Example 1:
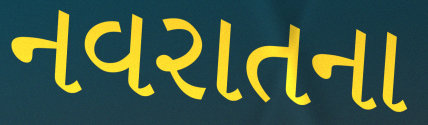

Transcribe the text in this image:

નવરાતના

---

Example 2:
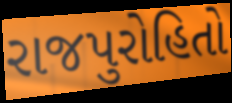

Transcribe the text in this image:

રાજપુરોહિતો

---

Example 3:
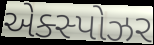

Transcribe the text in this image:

એક્સ્પોઝર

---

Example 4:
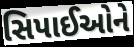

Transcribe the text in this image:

સિપાઈઓને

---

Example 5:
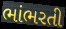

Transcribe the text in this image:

ભાંભરતી